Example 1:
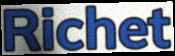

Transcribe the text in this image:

Richet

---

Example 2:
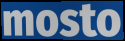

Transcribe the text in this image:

mosto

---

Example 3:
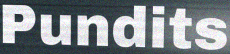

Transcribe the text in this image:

Pundits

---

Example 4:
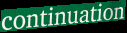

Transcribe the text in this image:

continuation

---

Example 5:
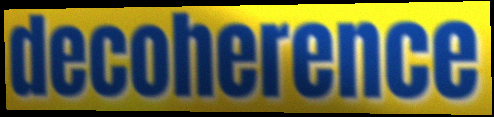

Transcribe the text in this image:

decoherence